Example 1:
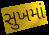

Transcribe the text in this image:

સુખમાં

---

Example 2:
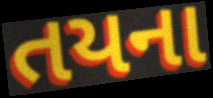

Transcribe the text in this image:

તયના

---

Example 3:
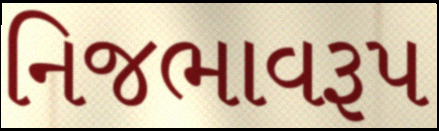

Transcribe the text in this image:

નિજભાવરૂપ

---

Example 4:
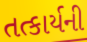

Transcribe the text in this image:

તત્કાર્યની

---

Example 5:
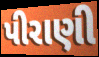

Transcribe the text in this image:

પીરાણી